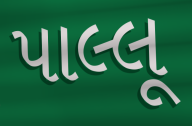
પાલ્લૂ